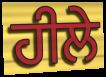
ਹੀਲੇ